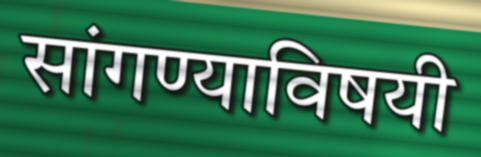
सांगण्याविषयी